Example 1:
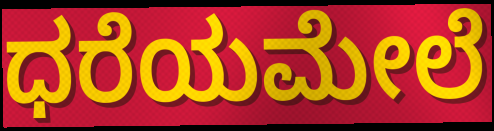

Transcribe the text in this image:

ಧರೆಯಮೇಲೆ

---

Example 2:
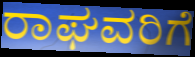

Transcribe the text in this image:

ರಾಘವರಿಗೆ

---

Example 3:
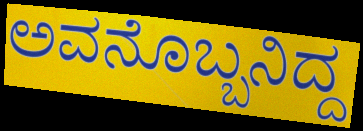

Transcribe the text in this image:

ಅವನೊಬ್ಬನಿದ್ದ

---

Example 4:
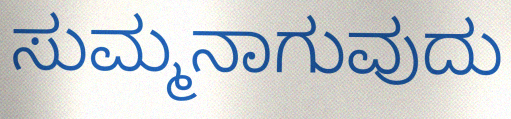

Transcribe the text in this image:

ಸುಮ್ಮನಾಗುವುದು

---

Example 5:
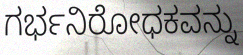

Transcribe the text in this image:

ಗರ್ಭನಿರೋಧಕವನ್ನು